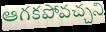
ఆగకపోవచ్చని